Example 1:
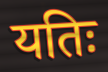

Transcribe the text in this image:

यतिः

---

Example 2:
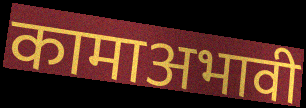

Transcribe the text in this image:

कामाअभावी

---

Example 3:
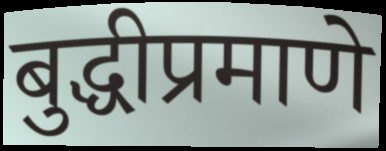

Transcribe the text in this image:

बुद्धीप्रमाणे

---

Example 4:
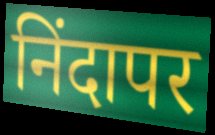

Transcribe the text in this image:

निंदापर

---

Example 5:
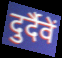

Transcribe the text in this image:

दुर्दैवें